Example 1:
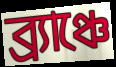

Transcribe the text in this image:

ব্র্যাঞ্চে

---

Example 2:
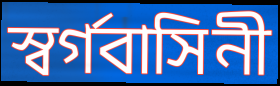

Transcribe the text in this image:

স্বর্গবাসিনী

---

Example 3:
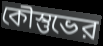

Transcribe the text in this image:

কৌস্তুভের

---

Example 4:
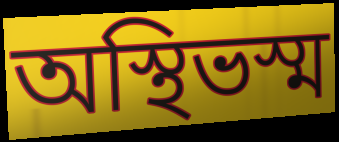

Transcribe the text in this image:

অস্থিভস্ম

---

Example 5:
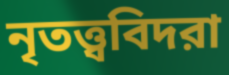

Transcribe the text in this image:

নৃতত্ত্ববিদরা